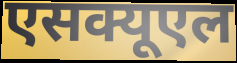
एसक्यूएल